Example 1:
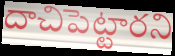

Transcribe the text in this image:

దాచిపెట్టారని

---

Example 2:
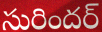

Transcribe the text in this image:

సురిందర్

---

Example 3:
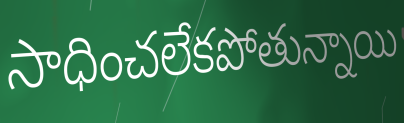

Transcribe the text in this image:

సాధించలేకపోతున్నాయి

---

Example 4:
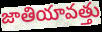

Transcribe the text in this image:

జాతియావత్తు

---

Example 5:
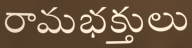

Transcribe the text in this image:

రామభక్తులు